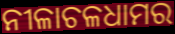
ନୀଳାଚଳଧାମର